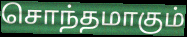
சொந்தமாகும்